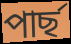
পাৰ্ছ